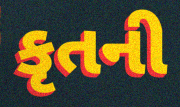
કૃતની